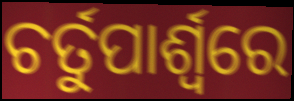
ଚର୍ତୁପାର୍ଶ୍ବରେ